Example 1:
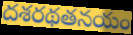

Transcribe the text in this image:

దశరథతనయం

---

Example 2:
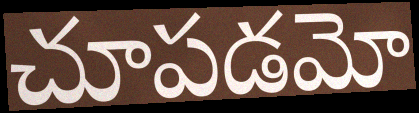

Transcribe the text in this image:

చూపడమో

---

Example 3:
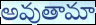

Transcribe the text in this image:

అవుతామా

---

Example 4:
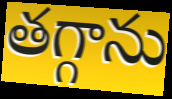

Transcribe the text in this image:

తగ్గాను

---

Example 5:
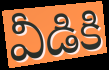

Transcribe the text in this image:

వీడికి